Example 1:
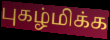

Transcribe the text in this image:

புகழ்மிக்க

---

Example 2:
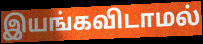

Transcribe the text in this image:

இயங்கவிடாமல்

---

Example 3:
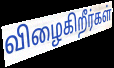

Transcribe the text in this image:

விழைகிறீர்கள்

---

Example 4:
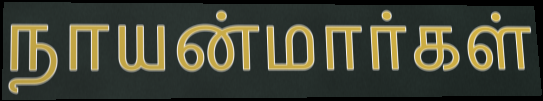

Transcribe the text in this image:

நாயன்மார்கள்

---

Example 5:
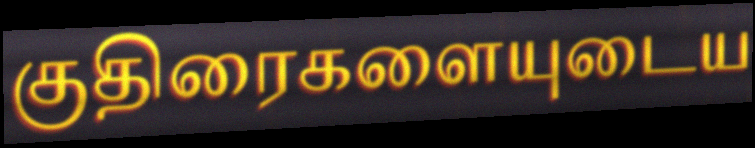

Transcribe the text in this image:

குதிரைகளையுடைய